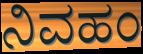
ನಿವಹಂ